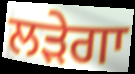
ਲੜੇਗਾ